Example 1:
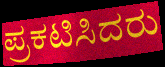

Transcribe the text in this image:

ಪ್ರಕಟಿಸಿದರು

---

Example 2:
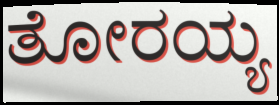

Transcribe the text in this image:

ತೋರಯ್ಯ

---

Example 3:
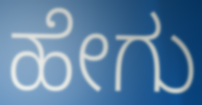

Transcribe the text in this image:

ಹೇಗು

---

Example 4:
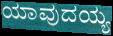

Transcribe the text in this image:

ಯಾವುದಯ್ಯ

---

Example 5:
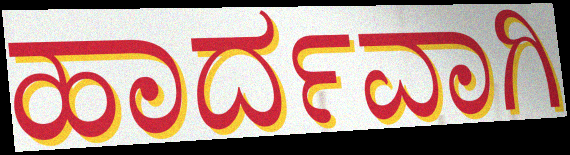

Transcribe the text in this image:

ಹಾರ್ದವಾಗಿ